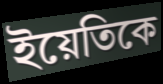
ইয়েতিকে